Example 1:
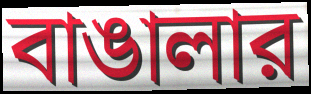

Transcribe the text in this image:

বাঙালার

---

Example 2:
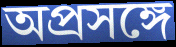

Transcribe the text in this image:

অপ্রসঙ্গে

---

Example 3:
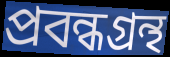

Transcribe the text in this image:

প্রবন্ধগ্রন্থ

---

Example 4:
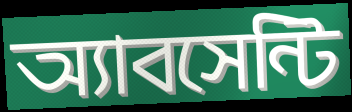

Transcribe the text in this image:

অ্যাবসেন্টি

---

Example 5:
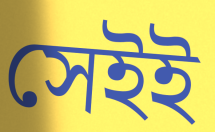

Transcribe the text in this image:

সেইই